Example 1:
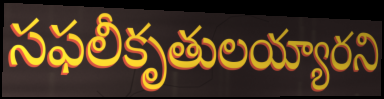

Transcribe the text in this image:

సఫలీకృతులయ్యారని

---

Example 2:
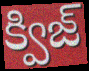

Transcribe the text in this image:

క్విజ్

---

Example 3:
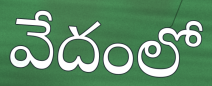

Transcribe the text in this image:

వేదంలో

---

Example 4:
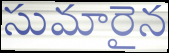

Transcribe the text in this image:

సుమారైన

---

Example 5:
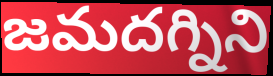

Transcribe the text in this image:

జమదగ్నిని